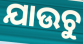
ଯାଉଚୁ